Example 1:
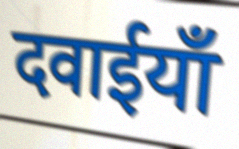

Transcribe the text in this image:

दवाईयाँ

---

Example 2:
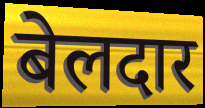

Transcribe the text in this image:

बेलदार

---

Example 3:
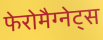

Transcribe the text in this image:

फेरोमैग्नेट्स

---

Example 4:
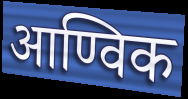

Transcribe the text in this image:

आण्विक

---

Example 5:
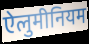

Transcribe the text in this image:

ऐलुमीनियम